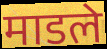
माडले